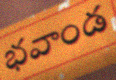
భవాండ